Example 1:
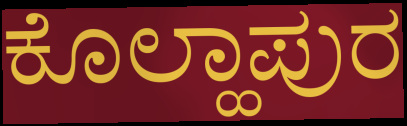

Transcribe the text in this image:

ಕೊಲ್ಹಾಪುರ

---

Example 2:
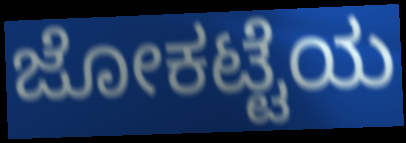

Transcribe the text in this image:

ಜೋಕಟ್ಟೆಯ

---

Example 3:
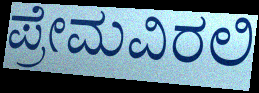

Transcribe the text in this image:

ಪ್ರೇಮವಿರಲಿ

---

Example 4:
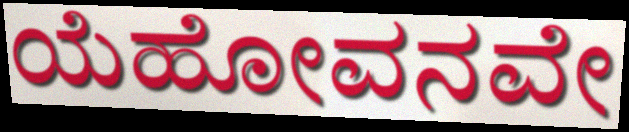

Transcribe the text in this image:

ಯೆಹೋವನವೇ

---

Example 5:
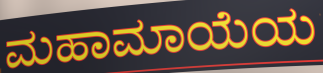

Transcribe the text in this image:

ಮಹಾಮಾಯೆಯ